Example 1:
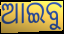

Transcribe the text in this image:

ଆଇବୁ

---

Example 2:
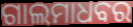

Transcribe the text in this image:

ଗାଲମାଧବର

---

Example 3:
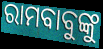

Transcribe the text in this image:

ରାମବାବୁଙ୍କୁ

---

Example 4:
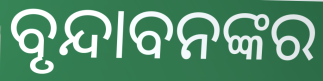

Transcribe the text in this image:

ବୃନ୍ଦାବନଙ୍କର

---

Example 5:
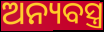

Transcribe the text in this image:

ଅନ୍ୟବସ୍ତ୍ର